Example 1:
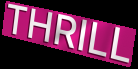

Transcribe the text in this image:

THRILL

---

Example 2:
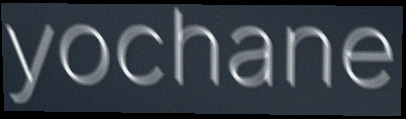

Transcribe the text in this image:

yochane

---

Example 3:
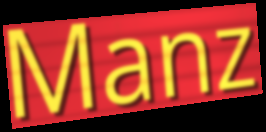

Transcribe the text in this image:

Manz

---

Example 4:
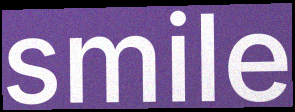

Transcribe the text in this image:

smile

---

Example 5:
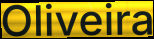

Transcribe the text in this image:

Oliveira